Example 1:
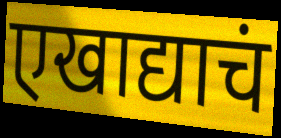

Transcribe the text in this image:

एखाद्याचं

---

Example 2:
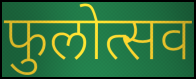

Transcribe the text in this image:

फुलोत्सव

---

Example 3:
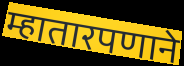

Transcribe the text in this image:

म्हातारपणाने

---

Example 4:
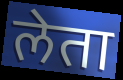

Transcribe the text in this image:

लेता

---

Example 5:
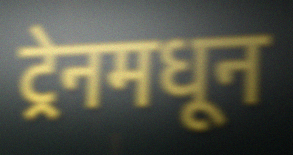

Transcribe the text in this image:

ट्रेनमधून